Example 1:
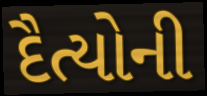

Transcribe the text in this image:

દૈત્યોની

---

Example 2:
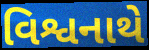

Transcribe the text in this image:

વિશ્વનાથે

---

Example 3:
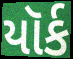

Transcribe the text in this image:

યૉર્ક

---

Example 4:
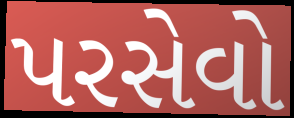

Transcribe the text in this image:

પરસેવો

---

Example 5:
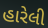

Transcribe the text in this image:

હારેલી